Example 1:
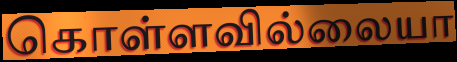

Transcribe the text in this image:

கொள்ளவில்லையா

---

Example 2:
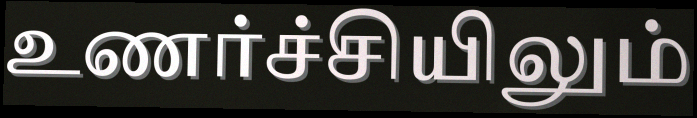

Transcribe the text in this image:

உணர்ச்சியிலும்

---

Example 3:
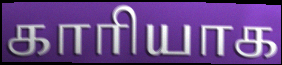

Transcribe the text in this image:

காரியாக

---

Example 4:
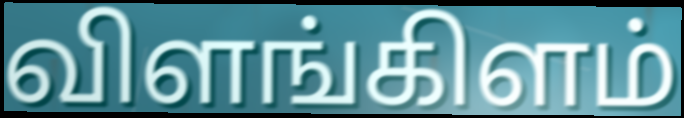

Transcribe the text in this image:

விளங்கிளம்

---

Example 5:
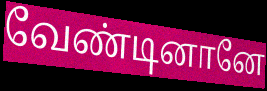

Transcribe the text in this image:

வேண்டினானே